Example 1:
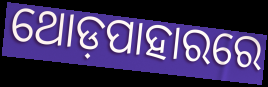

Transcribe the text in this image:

ଥୋଡ଼ପାହାରରେ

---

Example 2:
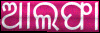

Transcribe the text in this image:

ଆଲଫା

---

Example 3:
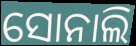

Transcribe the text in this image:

ସୋନାଲି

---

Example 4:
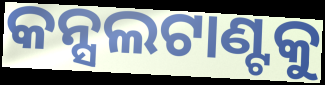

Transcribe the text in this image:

କନ୍ସଲଟାଣ୍ଟକୁ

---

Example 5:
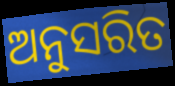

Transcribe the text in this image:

ଅନୁସରିତ